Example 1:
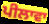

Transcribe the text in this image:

ਪੀਲਾਵਾ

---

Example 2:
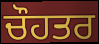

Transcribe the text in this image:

ਚੌਹਤਰ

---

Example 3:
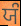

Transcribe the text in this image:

ਯੰ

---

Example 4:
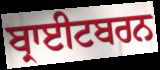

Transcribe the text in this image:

ਬ੍ਰਾਈਟਬਰਨ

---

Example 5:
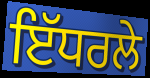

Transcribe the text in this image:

ਇੱਧਰਲੇ